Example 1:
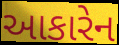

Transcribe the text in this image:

આકારેન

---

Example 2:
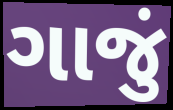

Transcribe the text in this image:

ગાજું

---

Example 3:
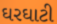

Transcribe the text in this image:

ઘરઘાટી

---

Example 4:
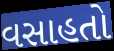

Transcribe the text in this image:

વસાહતો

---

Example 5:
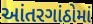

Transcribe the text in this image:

આંતરગાંઠોમાં